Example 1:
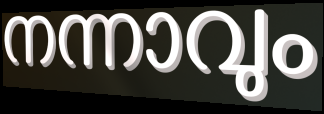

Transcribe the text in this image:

നന്നാവും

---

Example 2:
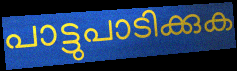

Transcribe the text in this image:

പാട്ടുപാടിക്കുക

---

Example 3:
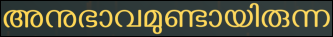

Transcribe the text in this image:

അനുഭാവമുണ്ടായിരുന്ന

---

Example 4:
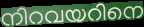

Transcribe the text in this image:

നിറവയറിനെ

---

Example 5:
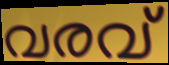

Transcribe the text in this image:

വരവ്